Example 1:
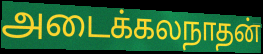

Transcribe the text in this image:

அடைக்கலநாதன்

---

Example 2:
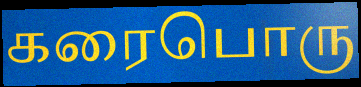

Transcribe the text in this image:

கரைபொரு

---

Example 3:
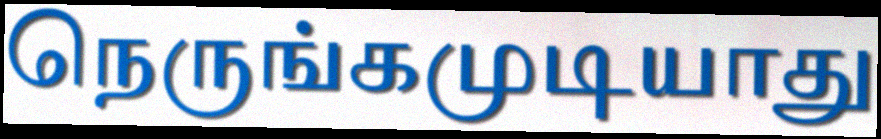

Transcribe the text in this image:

நெருங்கமுடியாது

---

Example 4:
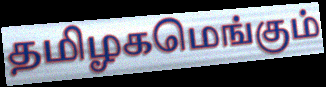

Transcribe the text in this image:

தமிழகமெங்கும்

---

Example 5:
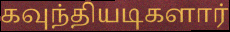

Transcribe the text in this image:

கவுந்தியடிகளார்